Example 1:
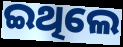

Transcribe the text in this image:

ଇଥିଲେ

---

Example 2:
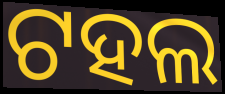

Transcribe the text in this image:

ଟହଲ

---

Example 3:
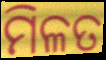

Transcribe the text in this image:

ମିଳତ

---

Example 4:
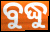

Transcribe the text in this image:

ବୁଦ୍ଧୁ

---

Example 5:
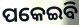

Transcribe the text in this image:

ପକେଇବି